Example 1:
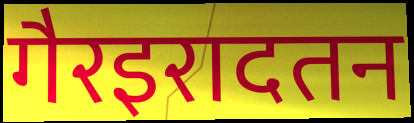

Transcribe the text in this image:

गैरइरादतन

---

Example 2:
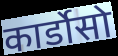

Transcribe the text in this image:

कार्डोसो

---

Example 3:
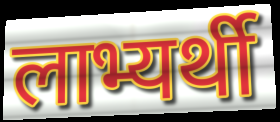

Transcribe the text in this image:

लाभ्यर्थी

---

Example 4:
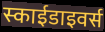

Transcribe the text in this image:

स्काईडाइवर्स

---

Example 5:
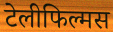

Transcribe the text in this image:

टेलीफिल्मस